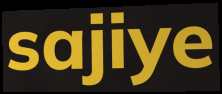
sajiye